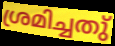
ശ്രമിച്ചതു്